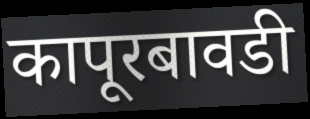
कापूरबावडी